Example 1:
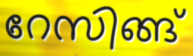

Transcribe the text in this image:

റേസിങ്ങ്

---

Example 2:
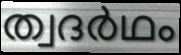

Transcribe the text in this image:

ത്വദർഥം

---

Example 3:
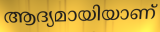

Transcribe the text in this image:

ആദ്യമായിയാണ്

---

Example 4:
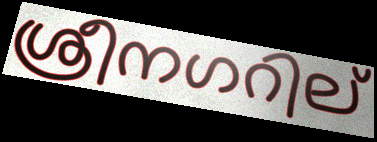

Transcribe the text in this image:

ശ്രീനഗറില്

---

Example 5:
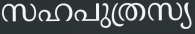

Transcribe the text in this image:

സഹപുത്രസ്യ